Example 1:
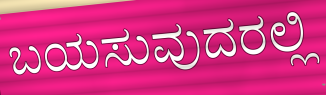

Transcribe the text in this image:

ಬಯಸುವುದರಲ್ಲಿ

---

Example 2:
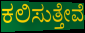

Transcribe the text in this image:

ಕಲಿಸುತ್ತೇವೆ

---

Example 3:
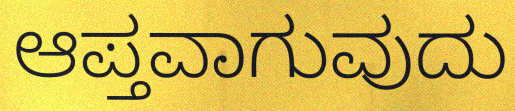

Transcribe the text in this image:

ಆಪ್ತವಾಗುವುದು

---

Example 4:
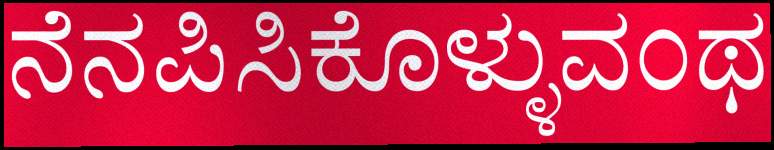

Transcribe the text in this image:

ನೆನಪಿಸಿಕೊಳ್ಳುವಂಥ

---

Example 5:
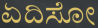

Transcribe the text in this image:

ಏದಿಸೋ